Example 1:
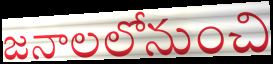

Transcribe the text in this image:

జనాలలోనుంచి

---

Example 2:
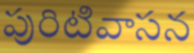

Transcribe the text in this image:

పురిటివాసన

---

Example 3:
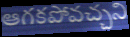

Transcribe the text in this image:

ఆగకపోవచ్చని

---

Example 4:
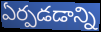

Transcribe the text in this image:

ఏర్పడడాన్ని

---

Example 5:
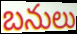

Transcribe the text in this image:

బనులు